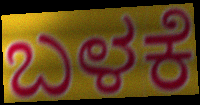
ಬಳಕೆ